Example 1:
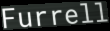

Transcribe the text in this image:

Furrell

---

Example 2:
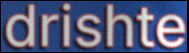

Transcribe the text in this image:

drishte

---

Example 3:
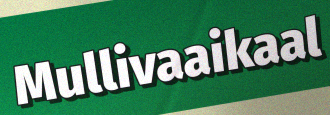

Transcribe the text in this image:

Mullivaaikaal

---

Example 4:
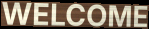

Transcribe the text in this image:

WELCOME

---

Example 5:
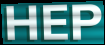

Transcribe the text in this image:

HEP